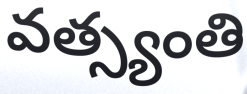
వత్స్యంతి